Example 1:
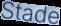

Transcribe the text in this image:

Stade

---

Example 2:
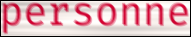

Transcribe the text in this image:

personne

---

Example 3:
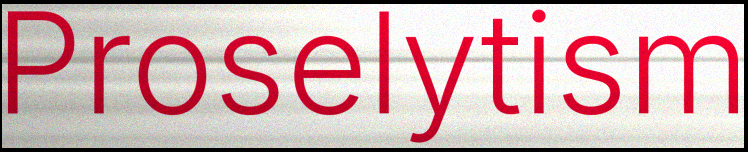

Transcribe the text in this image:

Proselytism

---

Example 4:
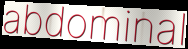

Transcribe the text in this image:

abdominal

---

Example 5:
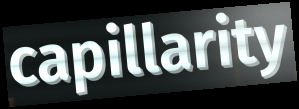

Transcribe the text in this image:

capillarity